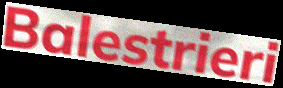
Balestrieri